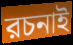
রচনাই